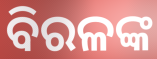
ବିରଳଙ୍କ